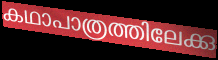
കഥാപാത്രത്തിലേക്കു